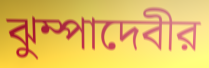
ঝুম্পাদেবীর